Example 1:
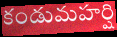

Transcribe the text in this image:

కండుమహర్షి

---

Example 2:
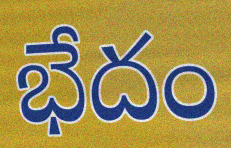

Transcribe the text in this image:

భేదం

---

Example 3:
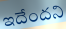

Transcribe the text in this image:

ఇదేందని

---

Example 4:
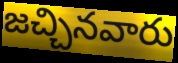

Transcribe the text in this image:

జచ్చినవారు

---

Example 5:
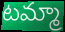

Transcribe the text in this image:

టమ్మా